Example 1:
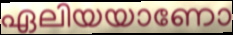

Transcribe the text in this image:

ഏലിയയാണോ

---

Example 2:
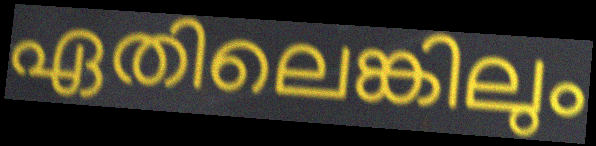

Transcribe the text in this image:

ഏതിലെങ്കിലും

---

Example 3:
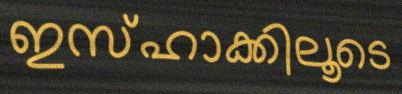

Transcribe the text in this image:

ഇസ്ഹാക്കിലൂടെ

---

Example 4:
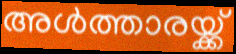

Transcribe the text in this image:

അൾത്താരയ്ക്ക്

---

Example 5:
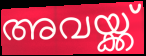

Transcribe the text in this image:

അവയ്ക്ക്